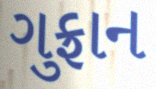
ગુફ્રાન